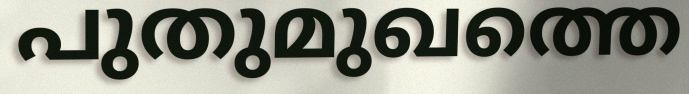
പുതുമുഖത്തെ